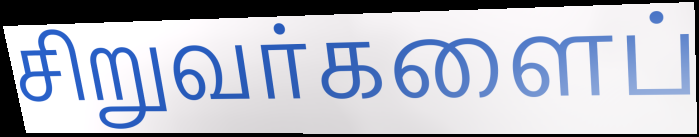
சிறுவர்களைப்